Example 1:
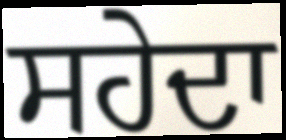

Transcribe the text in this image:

ਸਹੇਦਾ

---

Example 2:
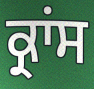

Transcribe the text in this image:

ਕ੍ਰਾਂਸ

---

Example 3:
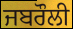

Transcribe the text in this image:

ਜਬਰੌਲੀ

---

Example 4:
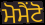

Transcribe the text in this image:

ਮੋਮੈਂਟੋ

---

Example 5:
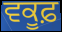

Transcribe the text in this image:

ਵਕੂਫ਼